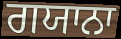
ਗਯਾਨਾ